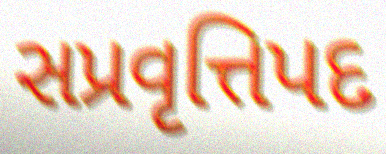
સપ્રવૃત્તિપદ